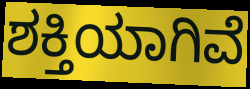
ಶಕ್ತಿಯಾಗಿವೆ